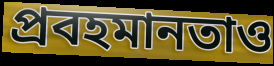
প্রবহমানতাও